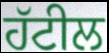
ਹੱਟੀਲ